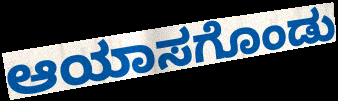
ಆಯಾಸಗೊಂಡು